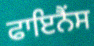
ਫਾਇਨੈਂਸ